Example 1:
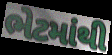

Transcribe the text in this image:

ભેટમાંથી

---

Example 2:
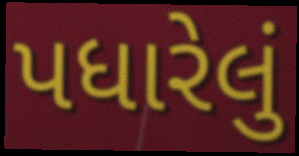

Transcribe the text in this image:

પધારેલું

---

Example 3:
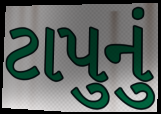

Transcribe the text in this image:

ટાપુનું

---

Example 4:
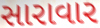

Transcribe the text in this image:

સારાવાર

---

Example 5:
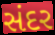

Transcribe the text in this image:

સંદર